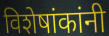
विशेषांकांनी